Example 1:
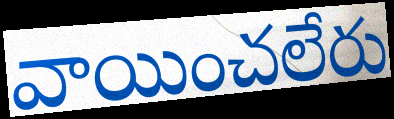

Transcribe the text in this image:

వాయించలేరు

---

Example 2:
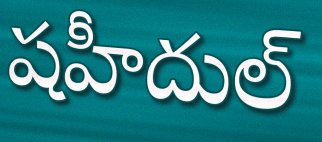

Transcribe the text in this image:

షహీదుల్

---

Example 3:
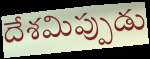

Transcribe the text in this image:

దేశమిప్పుడు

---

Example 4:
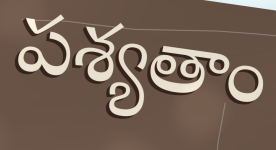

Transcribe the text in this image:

పశ్యతాం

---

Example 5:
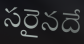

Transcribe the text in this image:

సరైనదే